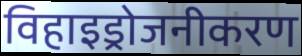
विहाइड्रोजनीकरण